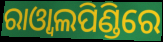
ରାଓ୍ଵାଲପିଣ୍ଡିରେ